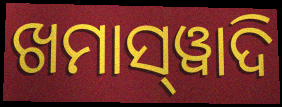
ଖମାସ୍‌ୱାଦି